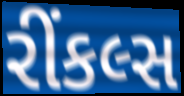
રીંકલ્સ